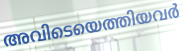
അവിടെയെത്തിയവർ